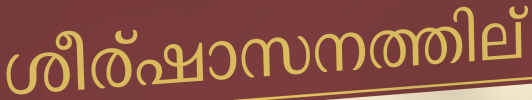
ശീര്ഷാസനത്തില്